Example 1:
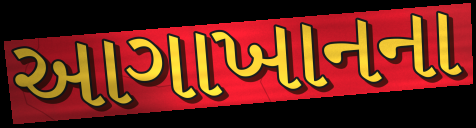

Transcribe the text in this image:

આગાખાનના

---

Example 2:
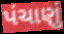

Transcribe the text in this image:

પંચાણું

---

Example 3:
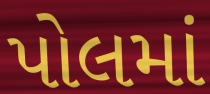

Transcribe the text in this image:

પોલમાં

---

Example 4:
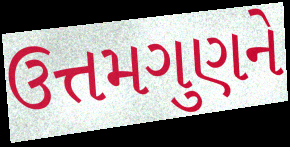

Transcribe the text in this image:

ઉત્તમગુણને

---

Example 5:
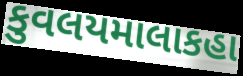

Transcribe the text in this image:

કુવલયમાલાકહા